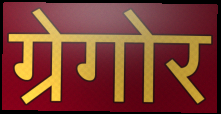
ग्रेगोर